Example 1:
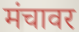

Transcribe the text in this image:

मंचावर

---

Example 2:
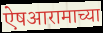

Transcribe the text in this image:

ऐषआरामाच्या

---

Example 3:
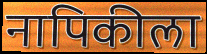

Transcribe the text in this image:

नापिकीला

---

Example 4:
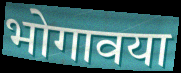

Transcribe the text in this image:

भोगावया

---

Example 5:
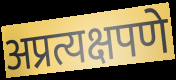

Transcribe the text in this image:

अप्रत्यक्षपणे